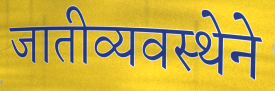
जातीव्यवस्थेने